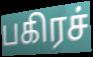
பகிரச்